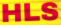
HLS